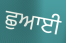
ਛੁਆਈ